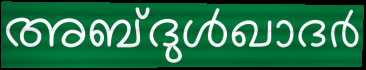
അബ്ദുൾഖാദർ